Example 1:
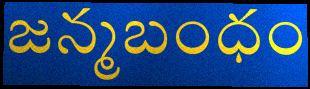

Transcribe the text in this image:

జన్మబంధం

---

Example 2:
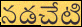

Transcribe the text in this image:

నడచేటి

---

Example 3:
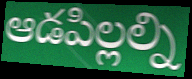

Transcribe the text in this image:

ఆడపిల్లల్ని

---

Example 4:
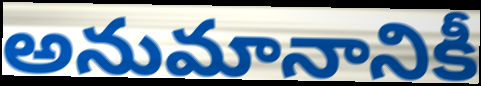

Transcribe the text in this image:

అనుమానానికీ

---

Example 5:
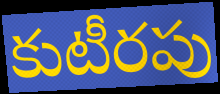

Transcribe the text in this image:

కుటీరపు